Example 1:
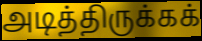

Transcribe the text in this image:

அடித்திருக்கக்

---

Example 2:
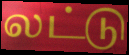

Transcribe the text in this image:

லட்டு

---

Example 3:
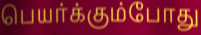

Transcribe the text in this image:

பெயர்க்கும்போது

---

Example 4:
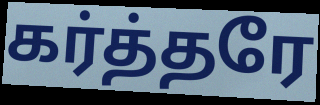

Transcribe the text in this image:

கர்த்தரே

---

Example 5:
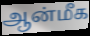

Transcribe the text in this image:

ஆன்மீக